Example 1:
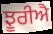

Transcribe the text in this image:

ਝੂਰੀਐ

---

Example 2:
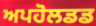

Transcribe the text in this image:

ਅਪਹੋਲਡਡ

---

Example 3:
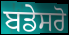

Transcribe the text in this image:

ਬਡੇਸਰੋ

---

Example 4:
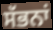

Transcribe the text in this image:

ਸੱਭਨਾਂ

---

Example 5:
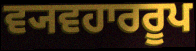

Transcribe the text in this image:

ਵ੍ਯਵਹਾਰਰੂਪ